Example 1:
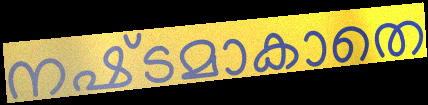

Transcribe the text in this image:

നഷ്‌ടമാകാതെ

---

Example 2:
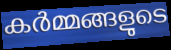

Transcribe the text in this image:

കർമ്മങ്ങളുടെ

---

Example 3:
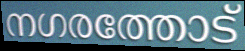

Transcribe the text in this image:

നഗരത്തോട്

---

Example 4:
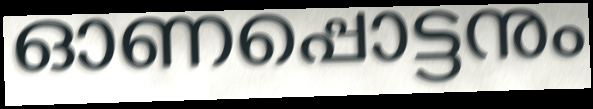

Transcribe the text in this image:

ഓണപ്പൊട്ടനും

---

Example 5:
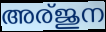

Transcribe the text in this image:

അര്ജുന